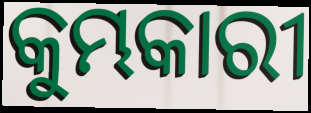
କୁମ୍ଭକାରୀ